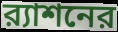
র‍্যাশনের